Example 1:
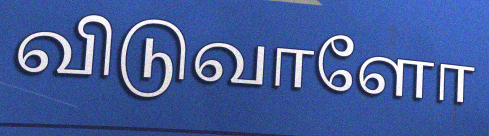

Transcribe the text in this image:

விடுவாளோ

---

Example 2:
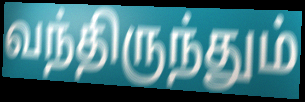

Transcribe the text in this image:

வந்திருந்தும்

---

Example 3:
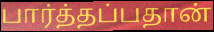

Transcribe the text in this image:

பார்த்தப்பதான்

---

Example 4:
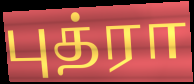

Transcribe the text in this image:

புத்ரா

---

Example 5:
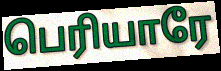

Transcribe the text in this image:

பெரியாரே